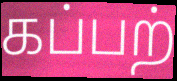
கப்பற்